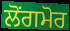
ਲੋਂਗਮੋਰ